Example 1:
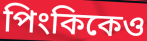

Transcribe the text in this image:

পিংকিকেও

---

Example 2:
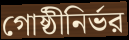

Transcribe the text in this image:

গোষ্ঠীনির্ভর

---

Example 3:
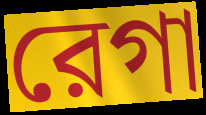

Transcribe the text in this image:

রেগা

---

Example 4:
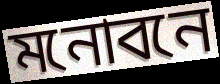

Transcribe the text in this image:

মনোবনে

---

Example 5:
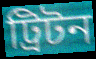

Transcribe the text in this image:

ট্রিটন